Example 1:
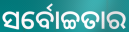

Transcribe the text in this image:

ସର୍ବୋଚ୍ଚତାର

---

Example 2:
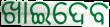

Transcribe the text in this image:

ଖାଇଦେବ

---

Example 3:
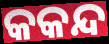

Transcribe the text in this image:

କକନ୍ଦ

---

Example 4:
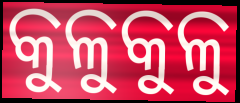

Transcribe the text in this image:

କୁଳୁକୁଳୁ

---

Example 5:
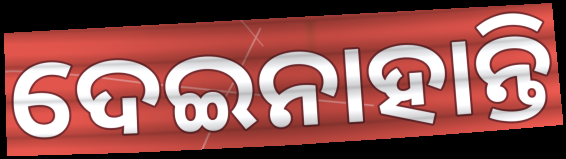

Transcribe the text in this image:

ଦେଇନାହାନ୍ତି